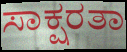
ಸಾಕ್ಷರತಾ